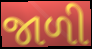
જાળી